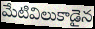
మేటివిలుకాడైన